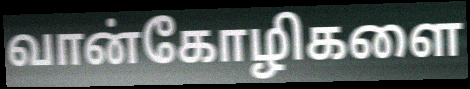
வான்கோழிகளை